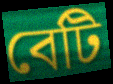
বেটি